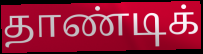
தாண்டிக்